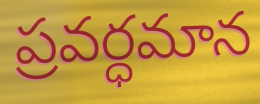
ప్రవర్ధమాన